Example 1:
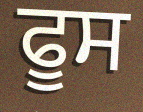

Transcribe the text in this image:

ਫੂਸ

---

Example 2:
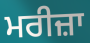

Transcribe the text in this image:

ਮਰੀਜ਼ਾ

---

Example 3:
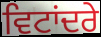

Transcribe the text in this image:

ਵਿਟਾਂਦਰੇ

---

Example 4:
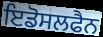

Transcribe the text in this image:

ਇਡੋਸਲਫੈਨ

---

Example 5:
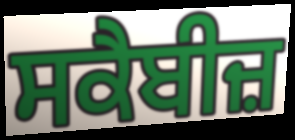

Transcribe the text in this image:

ਸਕੈਬੀਜ਼